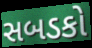
સબડકો